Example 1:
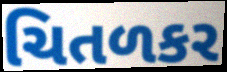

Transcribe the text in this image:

ચિતળકર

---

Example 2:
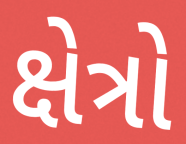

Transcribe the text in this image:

ક્ષેત્રો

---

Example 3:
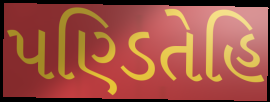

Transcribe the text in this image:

પણ્ડિતેહિ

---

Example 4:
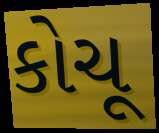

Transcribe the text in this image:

કોચૂ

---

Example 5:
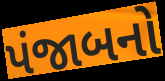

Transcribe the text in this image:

પંજાબનો